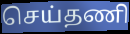
செய்தணி